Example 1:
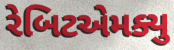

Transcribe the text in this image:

રેબિટએમક્યુ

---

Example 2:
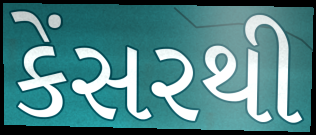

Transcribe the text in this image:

કેંસરથી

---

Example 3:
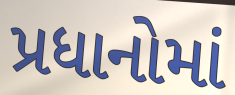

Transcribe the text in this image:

પ્રધાનોમાં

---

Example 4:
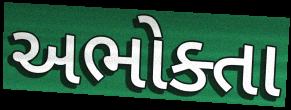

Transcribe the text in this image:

અભોક્તા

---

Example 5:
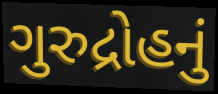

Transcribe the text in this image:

ગુરુદ્રોહનું